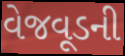
વેજવૂડની